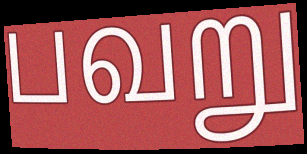
பவறு